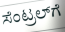
ಸೆಂಟ್ರಲ್‌ಗೆ